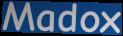
Madox